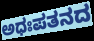
ಅಧಃಪತನದ